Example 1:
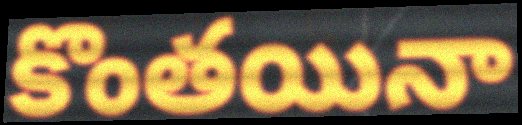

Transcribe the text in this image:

కొంతయినా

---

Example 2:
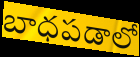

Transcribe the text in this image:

బాధపడాలో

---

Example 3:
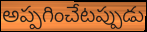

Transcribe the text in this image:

అప్పగించేటప్పుడు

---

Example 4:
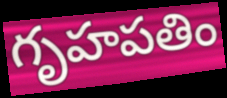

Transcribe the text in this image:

గృహపతిం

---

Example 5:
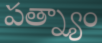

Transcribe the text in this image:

పత్న్యాం